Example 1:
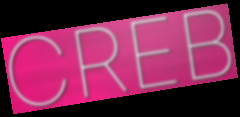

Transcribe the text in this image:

CREB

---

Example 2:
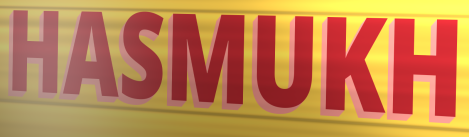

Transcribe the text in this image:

HASMUKH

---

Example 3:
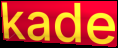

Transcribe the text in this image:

kade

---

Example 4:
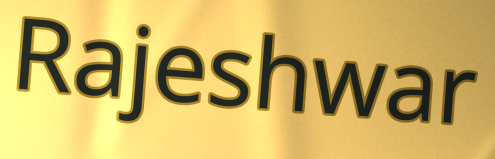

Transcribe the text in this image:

Rajeshwar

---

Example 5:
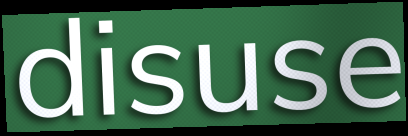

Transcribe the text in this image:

disuse